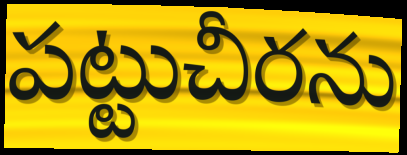
పట్టుచీరను